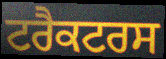
ਟਰੈਕਟਰਸ